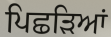
ਪਿਛੜਿਆਂ